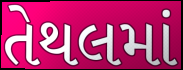
તેથલમાં